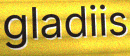
gladiis